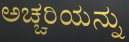
ಅಚ್ಚರಿಯನ್ನು